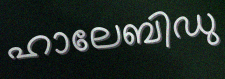
ഹാലേബിഡു